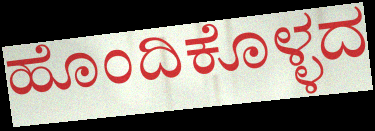
ಹೊಂದಿಕೊಳ್ಳದ